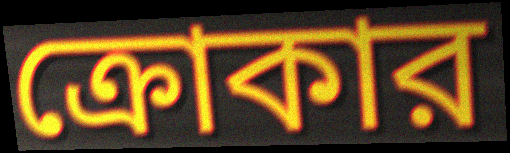
ক্রোকার